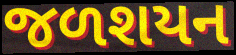
જળશયન